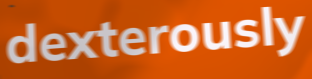
dexterously